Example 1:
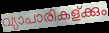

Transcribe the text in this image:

വ്യാപാരികള്ക്കും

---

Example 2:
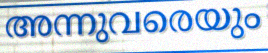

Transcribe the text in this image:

അന്നുവരെയും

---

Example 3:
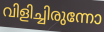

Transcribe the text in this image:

വിളിച്ചിരുന്നോ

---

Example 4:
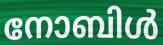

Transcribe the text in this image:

നോബിൾ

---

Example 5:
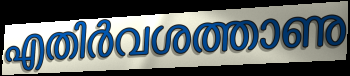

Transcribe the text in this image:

എതിർവശത്താണു